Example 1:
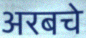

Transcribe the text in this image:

अरबचे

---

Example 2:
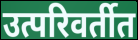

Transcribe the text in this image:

उत्परिवर्तीत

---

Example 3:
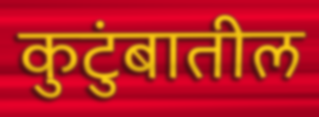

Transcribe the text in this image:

कुटुंबातील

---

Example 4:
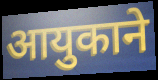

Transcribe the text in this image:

आयुकाने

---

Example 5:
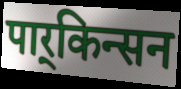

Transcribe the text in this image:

पार्किन्सन